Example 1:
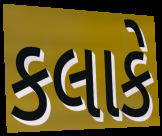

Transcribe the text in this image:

કલાકે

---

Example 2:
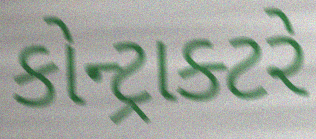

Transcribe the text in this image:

કોન્ટ્રાક્ટરે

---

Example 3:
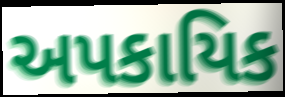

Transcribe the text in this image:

અપકાયિક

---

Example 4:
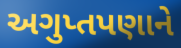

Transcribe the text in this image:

અગુપ્તપણાને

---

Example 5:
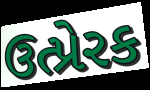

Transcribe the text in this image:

ઉત્પ્રેરક